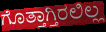
ಗೊತ್ತಾಗ್ತಿರಲಿಲ್ಲ